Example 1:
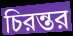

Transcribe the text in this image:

চিরন্তর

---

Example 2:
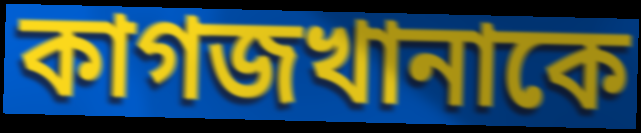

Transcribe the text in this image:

কাগজখানাকে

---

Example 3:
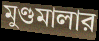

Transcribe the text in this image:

মুণ্ডমালার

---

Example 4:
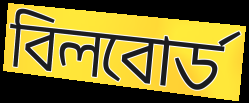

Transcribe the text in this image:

বিলবোর্ড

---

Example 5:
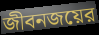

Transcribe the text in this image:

জীবনজয়ের